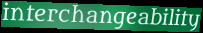
interchangeability